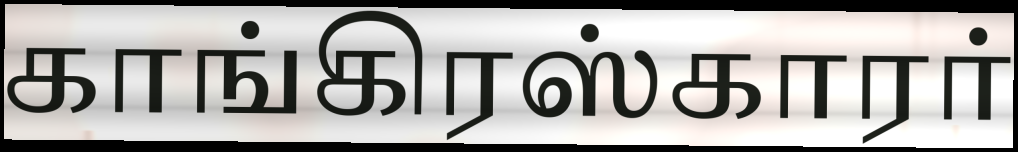
காங்கிரஸ்காரர்